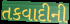
તકવાદીની